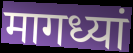
मागध्यां